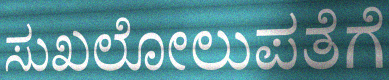
ಸುಖಲೋಲುಪತೆಗೆ